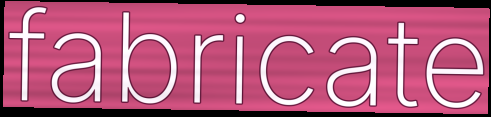
fabricate